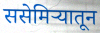
ससेमिऱ्यातून